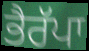
ਭੈਰੱਪਾ